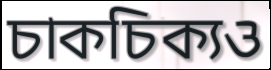
চাকচিক্যও